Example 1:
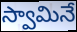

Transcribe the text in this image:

స్వామినే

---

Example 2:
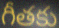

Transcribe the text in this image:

గీతకు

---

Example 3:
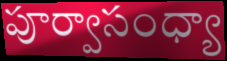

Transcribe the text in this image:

పూర్వాసంధ్యా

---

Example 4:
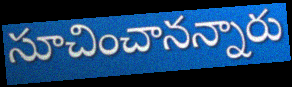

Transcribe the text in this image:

సూచించానన్నారు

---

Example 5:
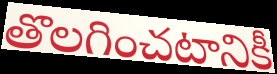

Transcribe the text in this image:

తొలగించటానికీ